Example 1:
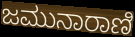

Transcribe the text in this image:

ಜಮುನಾರಾಣಿ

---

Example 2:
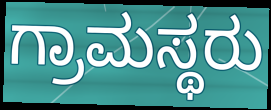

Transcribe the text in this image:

ಗ್ರಾಮಸ್ಥರು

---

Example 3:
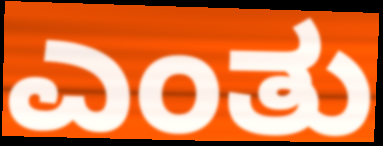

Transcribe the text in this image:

ಎಂತು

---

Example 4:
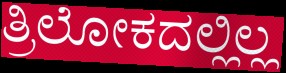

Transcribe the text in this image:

ತ್ರಿಲೋಕದಲ್ಲಿಲ್ಲ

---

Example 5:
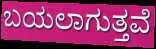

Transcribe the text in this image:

ಬಯಲಾಗುತ್ತವೆ